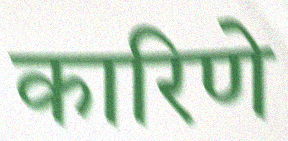
कारिणे